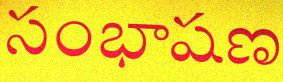
సంభాషణ